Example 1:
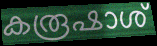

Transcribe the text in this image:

കരൂഷാശ്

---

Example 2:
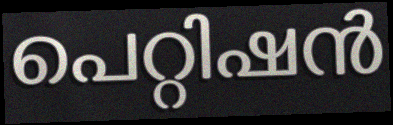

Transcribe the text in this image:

പെറ്റിഷൻ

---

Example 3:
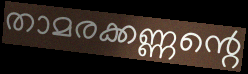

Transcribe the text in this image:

താമരക്കണ്ണന്റെ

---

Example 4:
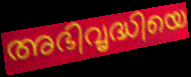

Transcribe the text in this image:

അഭിവൃദ്ധിയെ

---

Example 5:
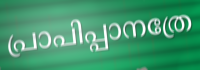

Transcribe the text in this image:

പ്രാപിപ്പാനത്രേ